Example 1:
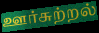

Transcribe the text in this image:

ஊர்சுற்றல்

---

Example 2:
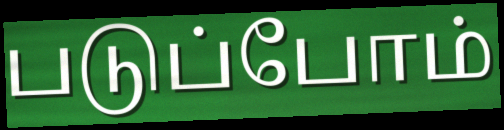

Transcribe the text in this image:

படுப்போம்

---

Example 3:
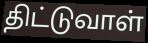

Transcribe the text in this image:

திட்டுவாள்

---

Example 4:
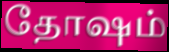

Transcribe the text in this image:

தோஷம்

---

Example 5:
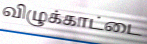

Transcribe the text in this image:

விழுக்காட்டை